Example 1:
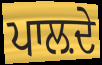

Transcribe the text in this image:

ਪਾਲ਼ਦੇ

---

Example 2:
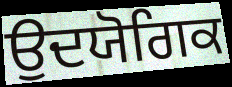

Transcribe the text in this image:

ਉਦਯੋਗਿਕ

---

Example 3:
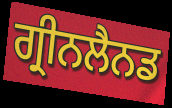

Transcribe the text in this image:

ਗ੍ਰੀਨਲੈਨਡ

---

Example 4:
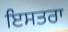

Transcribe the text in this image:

ਇਸਤਰਾ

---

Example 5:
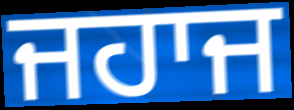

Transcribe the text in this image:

ਜਹਾਜ